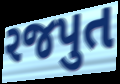
રજપુત